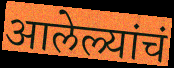
आलेल्यांचं